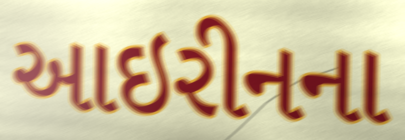
આઇરીનના